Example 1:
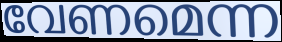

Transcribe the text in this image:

വേണമെന്ന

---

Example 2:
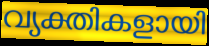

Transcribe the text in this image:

വ്യക്തികളായി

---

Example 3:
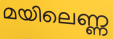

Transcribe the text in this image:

മയിലെണ്ണ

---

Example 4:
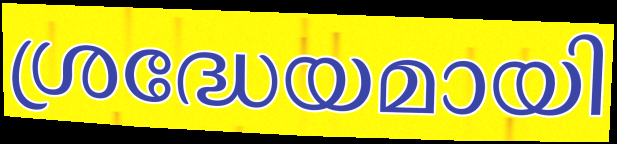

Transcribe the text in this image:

ശ്രദ്ധേയമായി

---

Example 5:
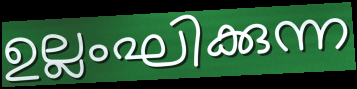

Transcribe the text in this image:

ഉല്ലംഘിക്കുന്ന